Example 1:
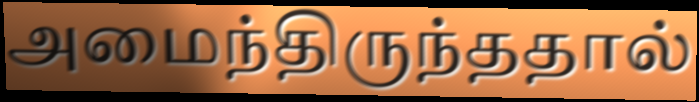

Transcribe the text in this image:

அமைந்திருந்ததால்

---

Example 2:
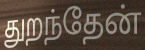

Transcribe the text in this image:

துறந்தேன்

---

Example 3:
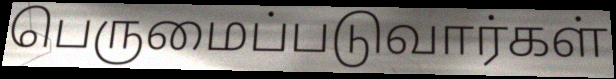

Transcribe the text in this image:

பெருமைப்படுவார்கள்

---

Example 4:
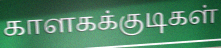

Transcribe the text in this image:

காளகக்குடிகள்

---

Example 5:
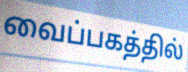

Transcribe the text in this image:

வைப்பகத்தில்